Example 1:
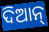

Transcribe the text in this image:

ଦିଆନ୍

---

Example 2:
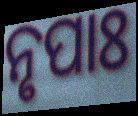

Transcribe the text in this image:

ନୃପାଃ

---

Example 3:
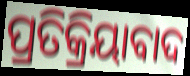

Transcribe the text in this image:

ପ୍ରତିକ୍ରିୟାବାଦ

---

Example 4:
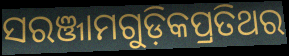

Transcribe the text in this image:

ସରଞ୍ଜାମଗୁଡ଼ିକପ୍ରତିଥର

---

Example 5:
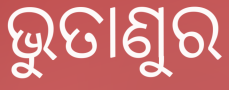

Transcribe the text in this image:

ଭୁତାଣୁର